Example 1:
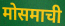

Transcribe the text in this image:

मोसमाची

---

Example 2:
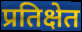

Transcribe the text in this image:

प्रतिक्षेत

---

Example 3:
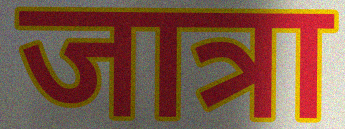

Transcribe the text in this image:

जात्रा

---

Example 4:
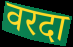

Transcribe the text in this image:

वरदा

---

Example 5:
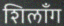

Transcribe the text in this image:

शिलाँग